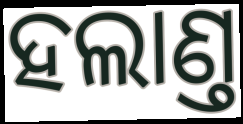
ହଲାଣ୍ତ